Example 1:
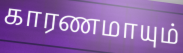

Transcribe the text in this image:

காரணமாயும்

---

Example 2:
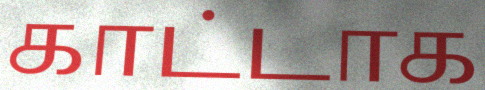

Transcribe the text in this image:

காட்டாக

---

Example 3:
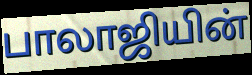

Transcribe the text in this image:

பாலாஜியின்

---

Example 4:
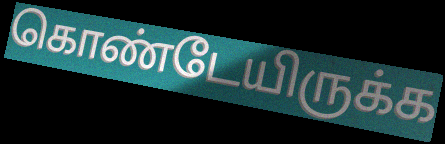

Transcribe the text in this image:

கொண்டேயிருக்க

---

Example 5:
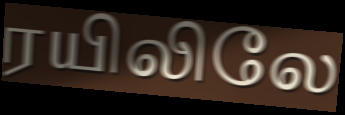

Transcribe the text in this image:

ரயிலிலே